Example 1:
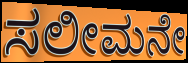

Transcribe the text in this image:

ಸಲೀಮನೇ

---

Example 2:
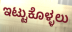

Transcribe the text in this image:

ಇಟ್ಟುಕೊಳ್ಳಲು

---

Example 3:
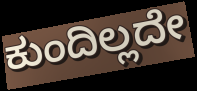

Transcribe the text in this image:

ಕುಂದಿಲ್ಲದೇ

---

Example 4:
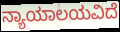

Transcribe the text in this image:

ನ್ಯಾಯಾಲಯವಿದೆ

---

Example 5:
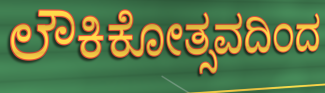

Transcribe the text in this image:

ಲೌಕಿಕೋತ್ಸವದಿಂದ